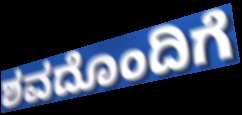
ಶವದೊಂದಿಗೆ